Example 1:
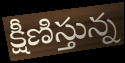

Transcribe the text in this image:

క్షీణిస్తున్న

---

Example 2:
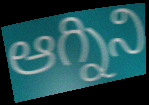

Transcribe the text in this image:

ఆగ్నిని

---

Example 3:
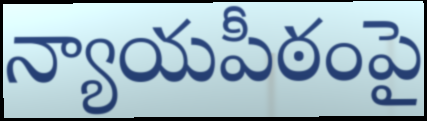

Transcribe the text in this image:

న్యాయపీఠంపై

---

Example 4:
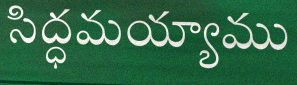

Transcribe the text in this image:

సిద్ధమయ్యాము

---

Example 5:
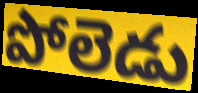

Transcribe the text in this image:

పోలెడు